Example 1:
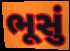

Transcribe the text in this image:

ભૂસું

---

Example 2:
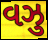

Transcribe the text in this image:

વઝુ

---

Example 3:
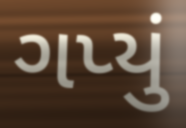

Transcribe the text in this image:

ગપ્યું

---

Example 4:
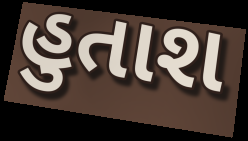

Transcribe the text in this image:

હુતાશ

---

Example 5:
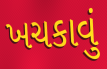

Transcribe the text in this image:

ખચકાવું